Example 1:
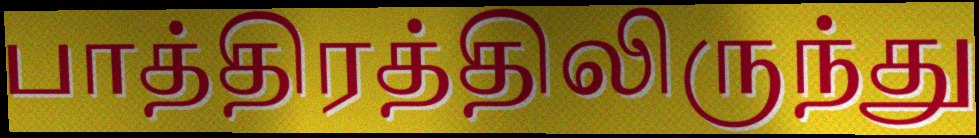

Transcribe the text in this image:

பாத்திரத்திலிருந்து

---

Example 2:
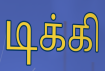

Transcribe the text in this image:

டிக்கி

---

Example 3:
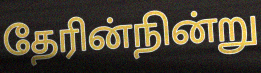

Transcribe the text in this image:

தேரின்நின்று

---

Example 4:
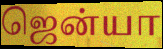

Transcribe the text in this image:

ஜென்யா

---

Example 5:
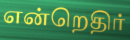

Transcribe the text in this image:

என்றெதிர்